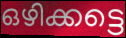
ഒഴിക്കട്ടെ